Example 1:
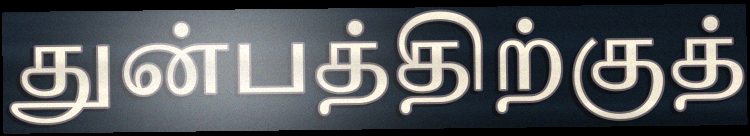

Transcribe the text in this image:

துன்பத்திற்குத்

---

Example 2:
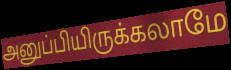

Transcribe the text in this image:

அனுப்பியிருக்கலாமே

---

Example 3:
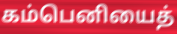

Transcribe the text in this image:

கம்பெனியைத்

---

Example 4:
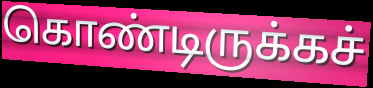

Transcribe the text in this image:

கொண்டிருக்கச்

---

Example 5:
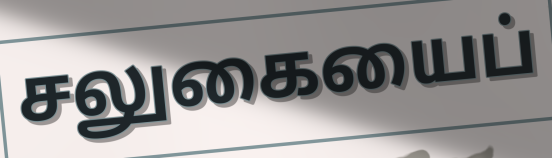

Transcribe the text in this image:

சலுகையைப்